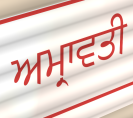
ਅਮ੍ਰਾਵਤੀ